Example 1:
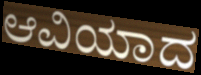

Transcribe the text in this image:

ಆವಿಯಾದ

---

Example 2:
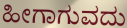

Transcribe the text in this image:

ಹೀಗಾಗುವದು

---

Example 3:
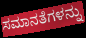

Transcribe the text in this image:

ಸಮಾನತೆಗಳನ್ನು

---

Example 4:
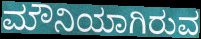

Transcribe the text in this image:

ಮೌನಿಯಾಗಿರುವ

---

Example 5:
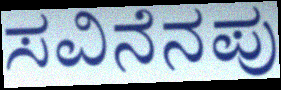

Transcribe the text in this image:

ಸವಿನೆನಪು